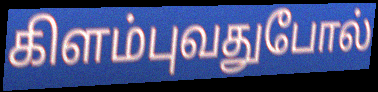
கிளம்புவதுபோல்